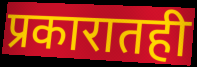
प्रकारातही